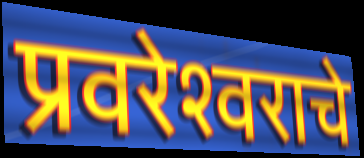
प्रवरेश्वराचे